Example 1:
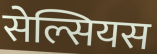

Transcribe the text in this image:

सेल्सियस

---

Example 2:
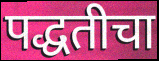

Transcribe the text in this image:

पद्धतीचा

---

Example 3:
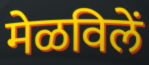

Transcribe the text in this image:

मेळविलें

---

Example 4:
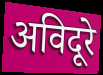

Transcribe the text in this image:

अविदूरे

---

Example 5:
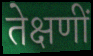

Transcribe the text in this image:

तेक्षणीं